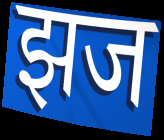
झज